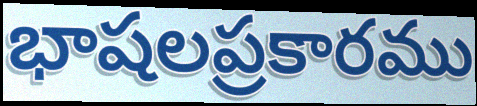
భాషలప్రకారము